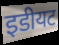
इडीयट